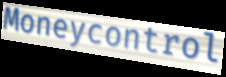
Moneycontrol